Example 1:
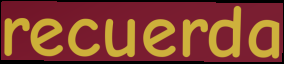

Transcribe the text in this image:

recuerda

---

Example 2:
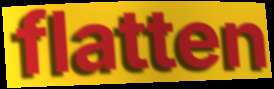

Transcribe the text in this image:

flatten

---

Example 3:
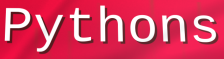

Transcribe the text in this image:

Pythons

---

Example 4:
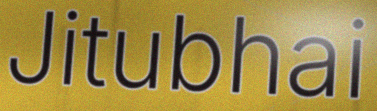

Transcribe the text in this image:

Jitubhai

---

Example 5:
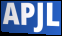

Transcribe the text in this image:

APJL